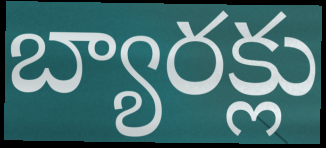
బ్యారక్లు